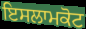
ਇਸਲਾਮਕੋਟ